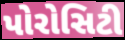
પોરોસિટી